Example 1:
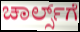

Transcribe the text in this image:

ಚಾರ್ಲ್ಸ್‌ಗೆ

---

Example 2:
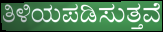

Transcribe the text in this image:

ತಿಳಿಯಪಡಿಸುತ್ತವೆ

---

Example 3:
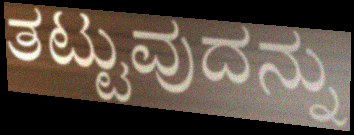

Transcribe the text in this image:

ತಟ್ಟುವುದನ್ನು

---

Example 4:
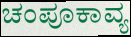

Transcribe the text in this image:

ಚಂಪೂಕಾವ್ಯ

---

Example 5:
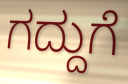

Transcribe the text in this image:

ಗದ್ದುಗೆ